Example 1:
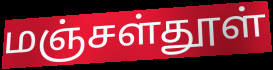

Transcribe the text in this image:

மஞ்சள்தூள்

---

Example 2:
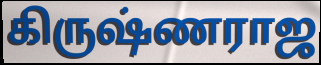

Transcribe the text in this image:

கிருஷ்ணராஜ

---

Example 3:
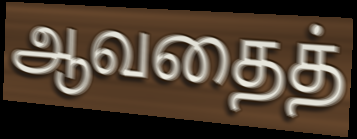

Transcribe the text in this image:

ஆவதைத்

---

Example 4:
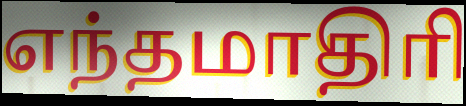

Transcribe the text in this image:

எந்தமாதிரி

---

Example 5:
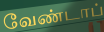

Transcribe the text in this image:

வேண்டாப்